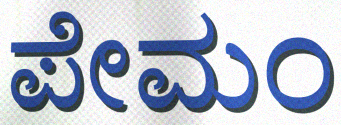
ಪೇಮಂ